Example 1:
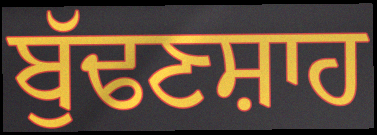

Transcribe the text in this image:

ਬੁੱਢਣਸ਼ਾਹ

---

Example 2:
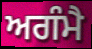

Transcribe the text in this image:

ਅਗੰਮੈ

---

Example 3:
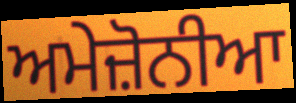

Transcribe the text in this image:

ਅਮੇਜ਼ੋਨੀਆ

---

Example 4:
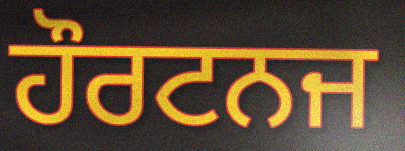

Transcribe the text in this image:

ਹੌਰਟਨਜ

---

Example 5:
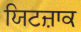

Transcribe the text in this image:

ਯਿਟਜ਼ਾਕ